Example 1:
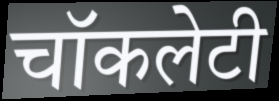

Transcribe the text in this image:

चॉकलेटी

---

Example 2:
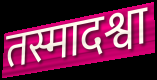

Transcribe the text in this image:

तस्मादश्वा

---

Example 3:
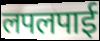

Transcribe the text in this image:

लपलपाई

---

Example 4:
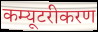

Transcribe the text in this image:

कम्यूटरीकरण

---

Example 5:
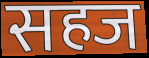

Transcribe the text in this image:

सहज